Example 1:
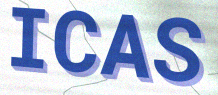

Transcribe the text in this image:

ICAS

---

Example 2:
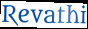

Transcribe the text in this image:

Revathi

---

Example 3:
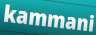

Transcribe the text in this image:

kammani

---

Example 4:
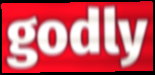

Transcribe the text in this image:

godly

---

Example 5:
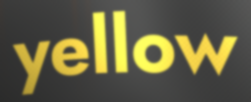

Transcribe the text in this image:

yellow